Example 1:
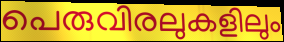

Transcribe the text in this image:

പെരുവിരലുകളിലും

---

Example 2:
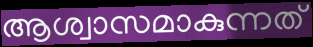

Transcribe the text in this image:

ആശ്വാസമാകുന്നത്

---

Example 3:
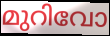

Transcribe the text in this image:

മുറിവോ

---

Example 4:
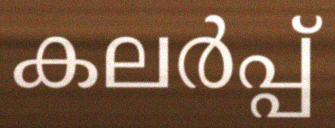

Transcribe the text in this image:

കലർപ്പ്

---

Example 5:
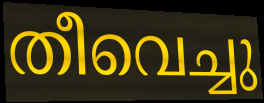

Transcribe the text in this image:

തീവെച്ചു